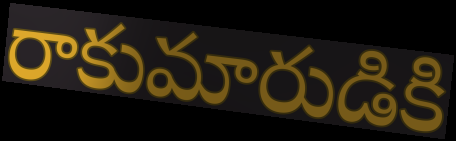
రాకుమారుడికి